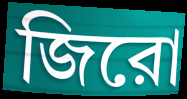
জিরো